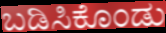
ಬಡಿಸಿಕೊಂಡು